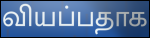
வியப்பதாக